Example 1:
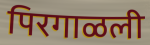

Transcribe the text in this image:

पिरगाळली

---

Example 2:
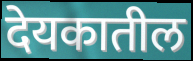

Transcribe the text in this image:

देयकातील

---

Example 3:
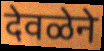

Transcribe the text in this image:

देवळेने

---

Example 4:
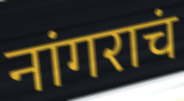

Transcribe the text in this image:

नांगराचं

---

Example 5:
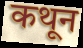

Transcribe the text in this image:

कथून